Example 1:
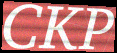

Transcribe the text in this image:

CKP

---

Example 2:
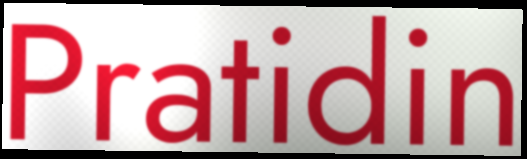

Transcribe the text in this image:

Pratidin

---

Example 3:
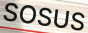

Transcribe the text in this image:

SOSUS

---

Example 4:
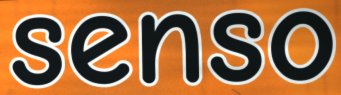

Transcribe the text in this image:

senso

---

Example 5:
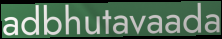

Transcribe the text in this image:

adbhutavaada